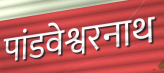
पांडवेश्वरनाथ